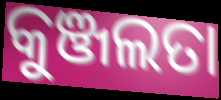
କୁଞ୍ଜଲତା